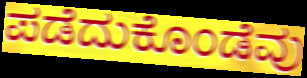
ಪಡೆದುಕೊಂಡೆವು